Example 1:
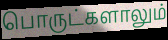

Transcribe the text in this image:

பொருட்களாலும்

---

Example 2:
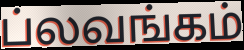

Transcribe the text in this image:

ப்லவங்கம்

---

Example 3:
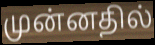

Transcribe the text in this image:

முன்னதில்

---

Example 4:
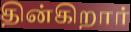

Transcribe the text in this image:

தின்கிறார்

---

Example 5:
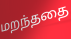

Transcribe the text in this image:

மறந்ததை